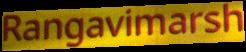
Rangavimarsh